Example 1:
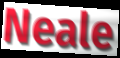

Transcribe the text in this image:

Neale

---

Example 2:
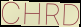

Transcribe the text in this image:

CHRD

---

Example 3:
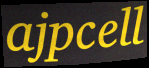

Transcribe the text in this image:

ajpcell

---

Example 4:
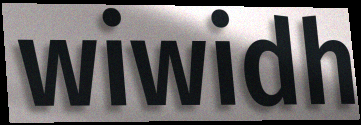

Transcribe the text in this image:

wiwidh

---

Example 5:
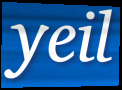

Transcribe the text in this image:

yeil